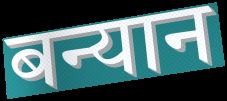
बन्यान